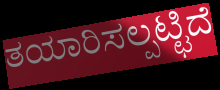
ತಯಾರಿಸಲ್ಪಟ್ಟಿದೆ